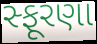
સ્ફૂરણા